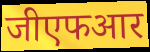
जीएफआर